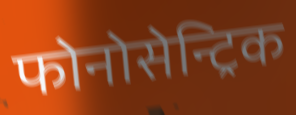
फोनोसेन्ट्रिक